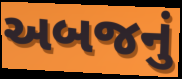
અબજનું